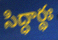
సిద్ధార్థః